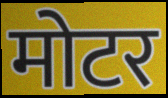
मोटर